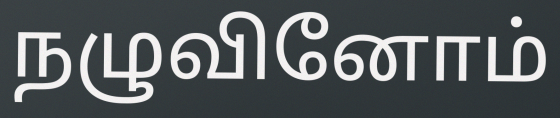
நழுவினோம்